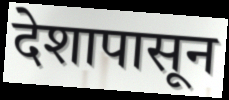
देशापासून